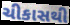
ચીકાસથી